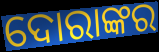
ଦୋରାଙ୍କର